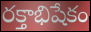
రక్తాభిషేకం